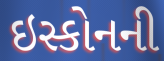
ઇસ્કોનની